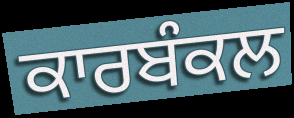
ਕਾਰਬੰਕਲ